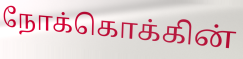
நோக்கொக்கின்